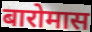
बारोमास